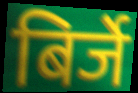
बिर्जे